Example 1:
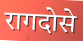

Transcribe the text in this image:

रागदोसे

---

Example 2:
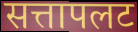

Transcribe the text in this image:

सत्तापलट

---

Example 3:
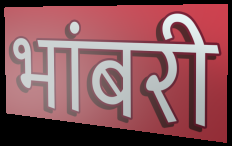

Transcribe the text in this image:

भांबरी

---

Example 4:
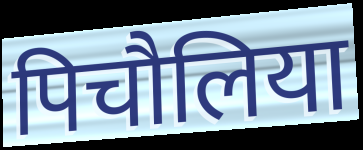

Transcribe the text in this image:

पिचौलिया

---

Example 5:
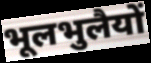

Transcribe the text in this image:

भूलभुलैयों